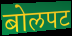
बोलपट